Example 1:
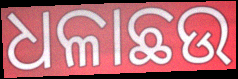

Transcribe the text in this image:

ଧଳାଛଉ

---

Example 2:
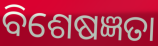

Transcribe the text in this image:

ବିଶେଷଜ୍ଞତା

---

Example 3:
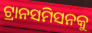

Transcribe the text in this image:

ଟ୍ରାନସମିସନକୁ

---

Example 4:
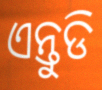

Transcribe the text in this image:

ଏନ୍ତୁଡି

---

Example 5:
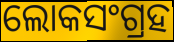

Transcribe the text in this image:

ଲୋକସଂଗ୍ରହ